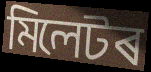
মিলেটৰ